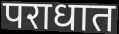
पराधात